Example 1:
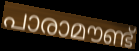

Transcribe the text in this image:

പാരാമൗണ്ട്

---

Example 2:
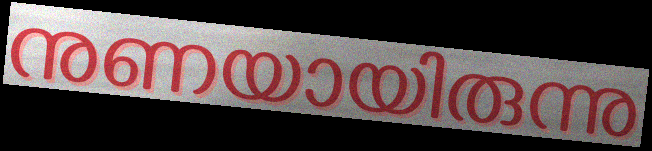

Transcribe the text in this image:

നുണയായിരുന്നു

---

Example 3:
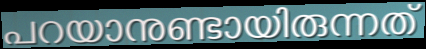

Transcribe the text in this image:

പറയാനുണ്ടായിരുന്നത്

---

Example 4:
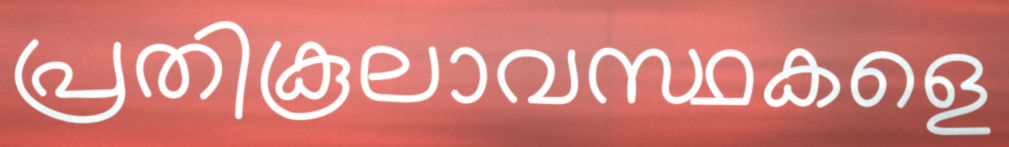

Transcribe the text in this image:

പ്രതികൂലാവസ്ഥകളെ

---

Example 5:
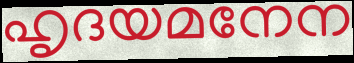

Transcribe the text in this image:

ഹൃദയമനേന